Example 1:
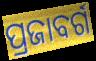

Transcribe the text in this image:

ପ୍ରଜାବର୍ଗ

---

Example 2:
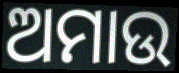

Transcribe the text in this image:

ଅମାଉ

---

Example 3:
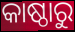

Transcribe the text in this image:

କାଷ୍ଠାରୁ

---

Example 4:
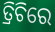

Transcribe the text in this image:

ତ୍ରିଚିରେ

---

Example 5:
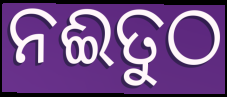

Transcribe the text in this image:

ନଈତୁଠ